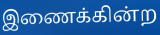
இணைக்கின்ற